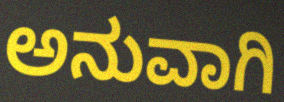
ಅನುವಾಗಿ